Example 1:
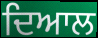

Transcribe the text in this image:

ਦਿਆਲ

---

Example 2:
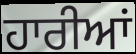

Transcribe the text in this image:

ਹਾਰੀਆਂ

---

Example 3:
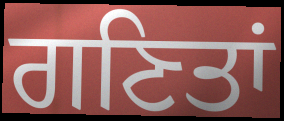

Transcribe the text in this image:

ਗਣਿਤਾਂ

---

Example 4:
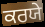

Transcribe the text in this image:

ਕਰਯੇ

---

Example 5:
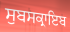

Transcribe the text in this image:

ਸੁਬਸਕ੍ਰਾਇਬ